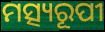
ମତ୍ସ୍ୟରୂପୀ